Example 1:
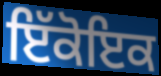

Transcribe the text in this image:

ਇੱਕੋਇਕ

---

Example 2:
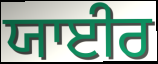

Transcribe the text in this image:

ਯਾਈਰ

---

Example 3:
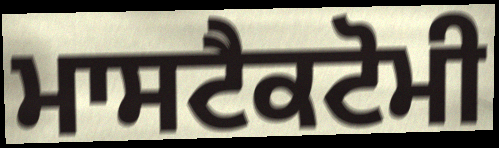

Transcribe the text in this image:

ਮਾਸਟੈਕਟੋਮੀ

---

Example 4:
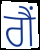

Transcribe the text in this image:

ਗੈਂ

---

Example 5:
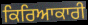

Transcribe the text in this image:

ਕਿਰਿਆਕਾਰੀ